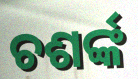
ଚଶର୍ଙ୍କ